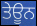
ਤੇਊਨ